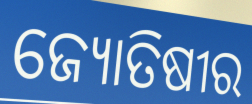
ଜ୍ୟୋତିଷୀର